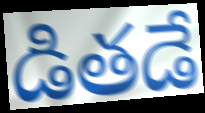
డితడే